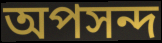
অপসন্দ